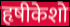
हृषीकेशो